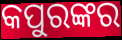
କପୁରଙ୍କର